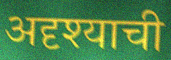
अदृश्याची